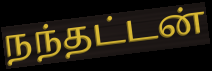
நந்தட்டன்